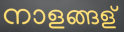
നാളങ്ങള്